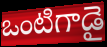
ఒంటిగాడై